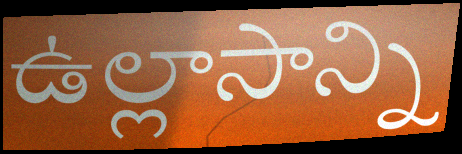
ఉల్లాసాన్ని